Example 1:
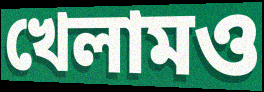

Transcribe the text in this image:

খেলামও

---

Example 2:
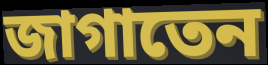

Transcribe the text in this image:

জাগাতেন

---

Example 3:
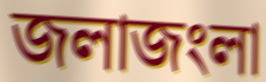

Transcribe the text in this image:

জলাজংলা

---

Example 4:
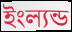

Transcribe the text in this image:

ইংল্যন্ড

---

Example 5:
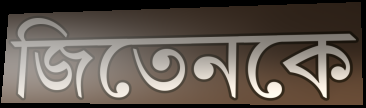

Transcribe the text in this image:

জিতেনকে